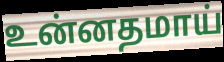
உன்னதமாய்